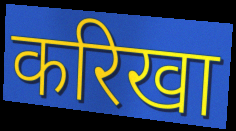
करिखा